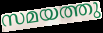
സമയത്തു